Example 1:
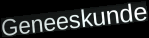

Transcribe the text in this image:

Geneeskunde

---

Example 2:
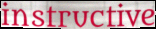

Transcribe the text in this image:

instructive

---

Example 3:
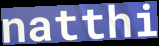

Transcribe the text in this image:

natthi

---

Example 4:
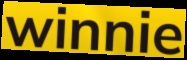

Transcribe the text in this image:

winnie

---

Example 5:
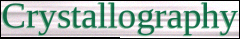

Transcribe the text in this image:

Crystallography